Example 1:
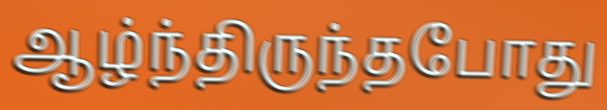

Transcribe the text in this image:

ஆழ்ந்திருந்தபோது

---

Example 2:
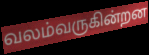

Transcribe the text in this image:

வலம்வருகின்றன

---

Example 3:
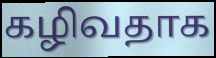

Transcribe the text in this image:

கழிவதாக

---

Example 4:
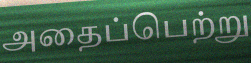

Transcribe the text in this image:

அதைப்பெற்று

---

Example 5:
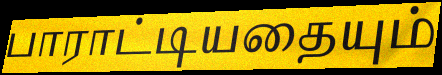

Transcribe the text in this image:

பாராட்டியதையும்